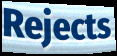
Rejects